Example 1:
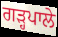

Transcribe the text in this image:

ਗੜ੍ਹਪਾਲੇ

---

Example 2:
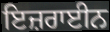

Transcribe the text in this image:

ਇਜ਼ਰਾਈਨ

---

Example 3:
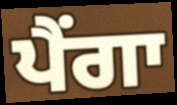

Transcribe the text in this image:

ਪੈਂਗਾ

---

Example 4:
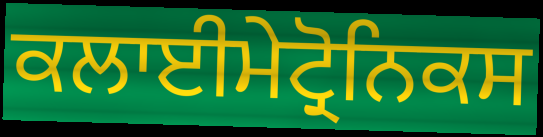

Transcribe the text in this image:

ਕਲਾਈਮੇਟ੍ਰੋਨਿਕਸ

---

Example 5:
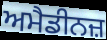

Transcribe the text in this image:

ਅਮੈਡੀਨਜ਼